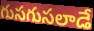
గుసగుసలాడే